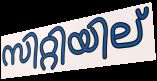
സിറ്റിയില്